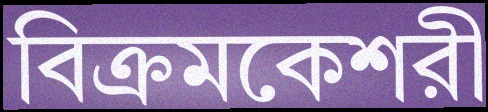
বিক্রমকেশরী